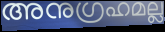
അനുഗ്രഹമല്ല